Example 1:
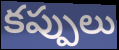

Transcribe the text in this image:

కప్పులు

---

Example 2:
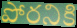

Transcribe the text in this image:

పోరనికి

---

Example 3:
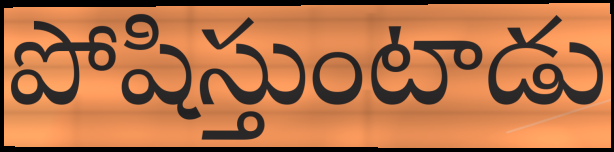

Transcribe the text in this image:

పోషిస్తుంటాడు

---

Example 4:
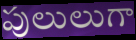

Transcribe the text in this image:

పులులుగా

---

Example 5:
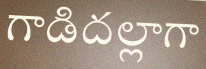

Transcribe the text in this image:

గాడిదల్లాగా